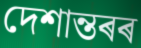
দেশান্তৰৰ